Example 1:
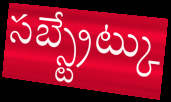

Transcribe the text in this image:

సబ్స్ట్రేట్కు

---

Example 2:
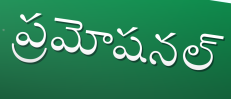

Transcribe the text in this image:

ప్రమోషనల్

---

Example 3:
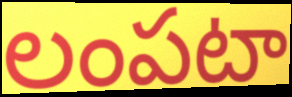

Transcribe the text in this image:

లంపటా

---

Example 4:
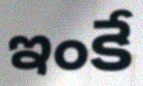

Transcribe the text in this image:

ఇంకే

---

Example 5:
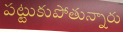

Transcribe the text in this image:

పట్టుకుపోతున్నారు